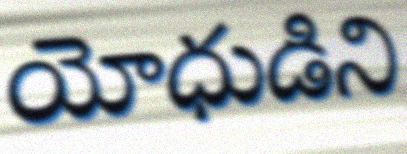
యోధుడిని